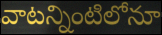
వాటన్నింటిలోనూ